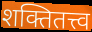
शक्तितत्त्व